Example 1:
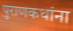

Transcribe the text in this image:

पुराणकथांना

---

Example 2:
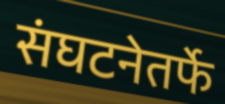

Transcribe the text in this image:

संघटनेतर्फे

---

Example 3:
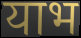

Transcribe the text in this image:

याभ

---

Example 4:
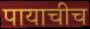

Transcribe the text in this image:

पायाचीच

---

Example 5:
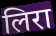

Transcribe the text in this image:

लिरा